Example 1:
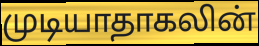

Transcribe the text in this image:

முடியாதாகலின்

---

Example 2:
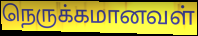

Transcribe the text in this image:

நெருக்கமானவள்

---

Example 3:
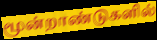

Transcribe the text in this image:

மூன்றாண்டுகளில்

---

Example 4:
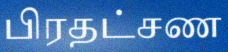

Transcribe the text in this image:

பிரதட்சண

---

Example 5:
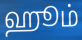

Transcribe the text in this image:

ஹூம்